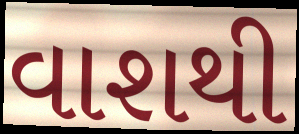
વાશથી